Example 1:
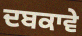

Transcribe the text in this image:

ਦਬਕਾਵੇ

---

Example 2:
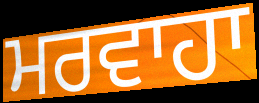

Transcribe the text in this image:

ਮਰਵਾਹਾ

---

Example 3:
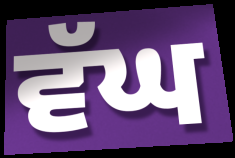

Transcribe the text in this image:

ਵੱਘ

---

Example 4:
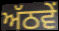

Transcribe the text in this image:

ਅੱਠਵੇਂ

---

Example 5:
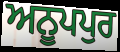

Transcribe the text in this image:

ਅਨੂਪਪੁਰ